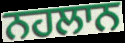
ਨਹਲਾਨ